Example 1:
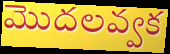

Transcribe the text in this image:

మొదలవ్వక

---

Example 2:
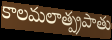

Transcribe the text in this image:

కాలమలాత్ప్రపాతు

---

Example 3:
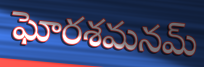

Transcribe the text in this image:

ఘోరశమనమ్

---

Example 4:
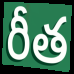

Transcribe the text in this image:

రీత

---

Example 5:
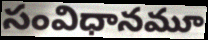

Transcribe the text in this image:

సంవిధానమూ